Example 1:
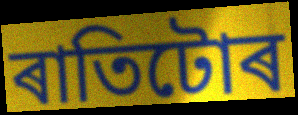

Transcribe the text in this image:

ৰাতিটোৰ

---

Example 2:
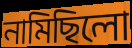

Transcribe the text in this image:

নামিছিলো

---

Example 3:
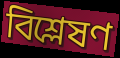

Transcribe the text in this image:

বিশ্লেষণ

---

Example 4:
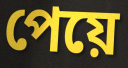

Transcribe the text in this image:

পেয়ে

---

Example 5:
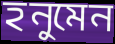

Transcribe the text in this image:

হনুমেন